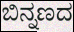
ಬಿನ್ನಣದ